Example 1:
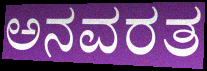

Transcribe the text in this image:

ಅನವರತ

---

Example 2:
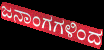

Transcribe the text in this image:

ಜನಾಂಗಗಳಿಂದ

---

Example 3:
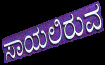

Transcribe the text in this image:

ಸಾಯಲಿರುವ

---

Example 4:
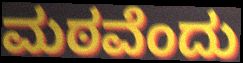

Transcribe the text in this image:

ಮಠವೆಂದು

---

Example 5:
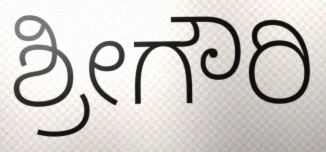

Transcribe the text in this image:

ಶ್ರೀಗೌರಿ